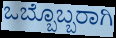
ಒಬ್ಬೊಬ್ಬರಾಗಿ